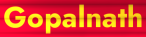
Gopalnath